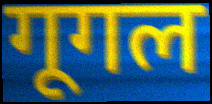
गूगल